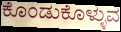
ಕೊಂಡುಕೊಳ್ಳುವ